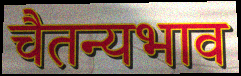
चैतन्यभाव